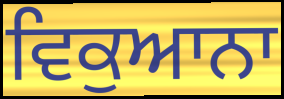
ਵਿਕੁਆਨਾ